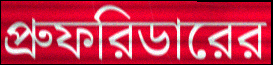
প্রুফরিডারের